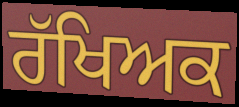
ਰੱਖਿਅਕ